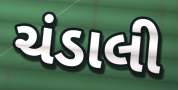
ચંડાલી